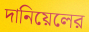
দানিয়েলের